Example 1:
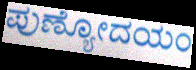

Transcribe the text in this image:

ಪುಣ್ಯೋದಯಂ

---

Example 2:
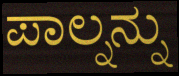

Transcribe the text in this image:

ಪಾಲ್ನನ್ನು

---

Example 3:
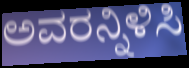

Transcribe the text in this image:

ಅವರನ್ನಿಳಿಸಿ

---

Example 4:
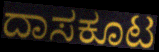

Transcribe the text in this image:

ದಾಸಕೂಟ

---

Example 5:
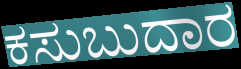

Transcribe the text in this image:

ಕಸುಬುದಾರ